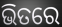
ଭିତରେ